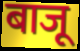
बाजू